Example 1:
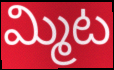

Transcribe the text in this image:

మ్మిట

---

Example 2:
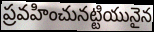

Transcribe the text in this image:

ప్రవహించునట్టియునైన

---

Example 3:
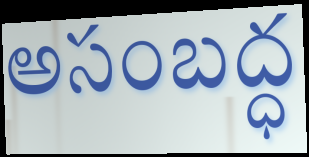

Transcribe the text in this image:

అసంబద్ధ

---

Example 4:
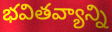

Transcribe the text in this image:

భవితవ్యాన్ని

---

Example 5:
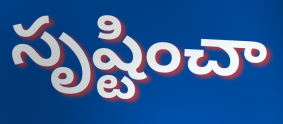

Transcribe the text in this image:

సృష్టించా